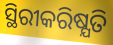
ସ୍ଥିରୀକରିଷ୍ଯତି